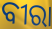
ବୀରା